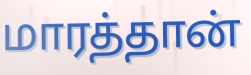
மாரத்தான்